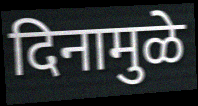
दिनामुळे